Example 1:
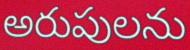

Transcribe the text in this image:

అరుపులను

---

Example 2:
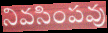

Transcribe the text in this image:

నివసింపవు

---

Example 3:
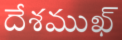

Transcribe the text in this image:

దేశముఖ్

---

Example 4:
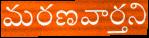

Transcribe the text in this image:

మరణవార్తని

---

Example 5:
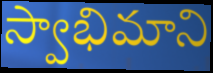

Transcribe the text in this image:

స్వాభిమాని